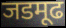
जडमूढ